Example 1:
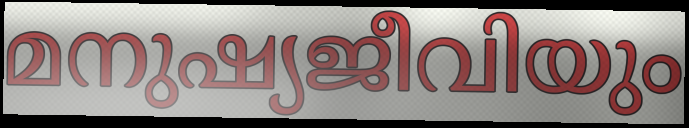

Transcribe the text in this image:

മനുഷ്യജീവിയും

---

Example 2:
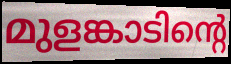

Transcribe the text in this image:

മുളങ്കാടിന്റെ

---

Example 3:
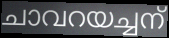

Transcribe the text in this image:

ചാവറയച്ചന്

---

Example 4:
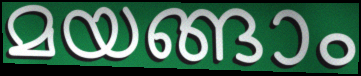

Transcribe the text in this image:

മയങ്ങാം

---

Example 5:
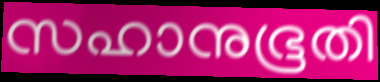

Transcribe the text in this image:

സഹാനുഭൂതി